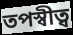
তপস্বীত্ব